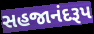
સહજાનંદરૂપ